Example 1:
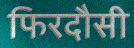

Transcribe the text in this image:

फिरदौसी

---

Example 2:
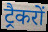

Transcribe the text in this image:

ट्रैकरों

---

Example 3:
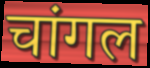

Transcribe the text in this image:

चांगल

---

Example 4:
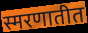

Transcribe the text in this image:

स्मरणातीत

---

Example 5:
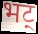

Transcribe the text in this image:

भट्